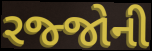
રજ્જોની